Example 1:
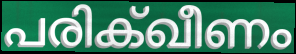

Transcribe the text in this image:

പരിക്ഖീണം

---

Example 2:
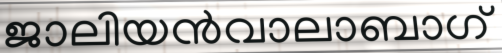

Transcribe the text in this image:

ജാലിയൻവാലാബാഗ്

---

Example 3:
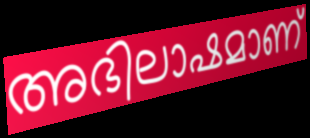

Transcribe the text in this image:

അഭിലാഷമാണ്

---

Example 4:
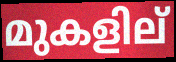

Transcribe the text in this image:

മുകളില്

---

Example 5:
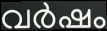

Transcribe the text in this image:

വർഷം